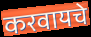
करवायचे